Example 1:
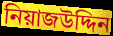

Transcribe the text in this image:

নিয়াজউদ্দিন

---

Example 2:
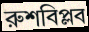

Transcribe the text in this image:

রুশবিপ্লব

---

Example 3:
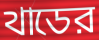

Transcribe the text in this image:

থাডের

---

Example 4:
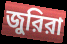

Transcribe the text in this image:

জুরিরা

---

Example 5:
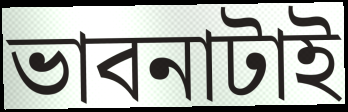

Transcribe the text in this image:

ভাবনাটাই